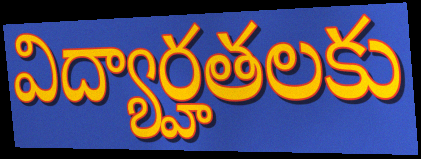
విద్యార్హతలకు